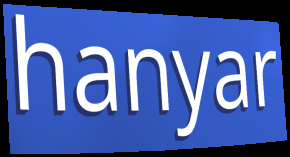
hanyar